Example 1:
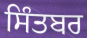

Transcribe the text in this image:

ਸਿੰਤਬਰ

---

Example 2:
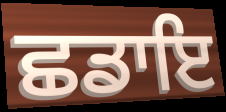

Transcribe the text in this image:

ਛਡਾਇ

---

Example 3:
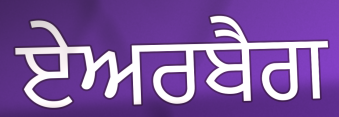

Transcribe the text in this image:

ਏਅਰਬੈਗ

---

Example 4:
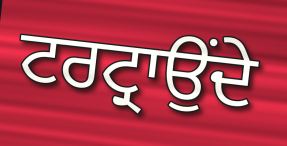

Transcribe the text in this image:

ਟਰਟ੍ਰਾਉਂਦੇ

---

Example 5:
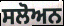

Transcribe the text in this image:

ਸਲੋਅਨ